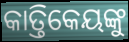
କାତ୍ତିକେୟଙ୍କୁ